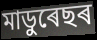
মাডুৰেছৰ